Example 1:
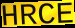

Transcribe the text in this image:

HRCE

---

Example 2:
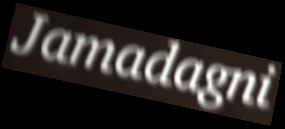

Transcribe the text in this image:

Jamadagni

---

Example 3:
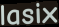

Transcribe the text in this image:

lasix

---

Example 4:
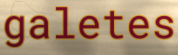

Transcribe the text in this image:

galetes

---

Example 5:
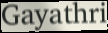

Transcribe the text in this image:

Gayathri